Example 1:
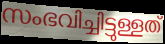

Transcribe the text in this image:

സംഭവിച്ചിട്ടുള്ളത്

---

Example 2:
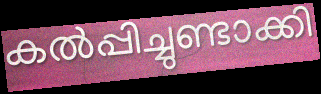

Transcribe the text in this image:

കൽപ്പിച്ചുണ്ടാക്കി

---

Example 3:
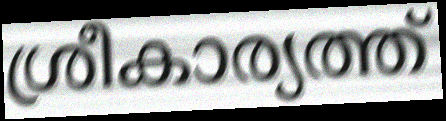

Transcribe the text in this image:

ശ്രീകാര്യത്ത്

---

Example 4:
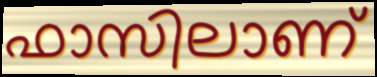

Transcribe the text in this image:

ഫാസിലാണ്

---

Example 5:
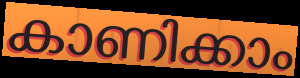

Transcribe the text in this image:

കാണിക്കാം